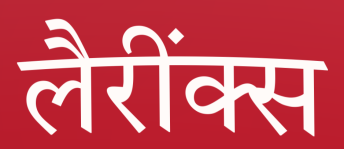
लैरींक्स